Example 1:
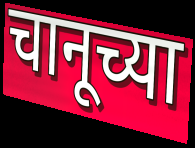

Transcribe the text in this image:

चानूच्या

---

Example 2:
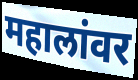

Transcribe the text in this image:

महालांवर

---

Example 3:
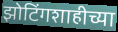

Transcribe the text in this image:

झोटिंगशाहीच्या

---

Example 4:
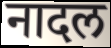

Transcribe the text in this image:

नादल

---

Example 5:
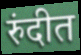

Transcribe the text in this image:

रुंदीत